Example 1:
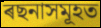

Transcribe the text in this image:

ৰছনাসমূহত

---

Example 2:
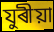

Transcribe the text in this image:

যুৰীয়া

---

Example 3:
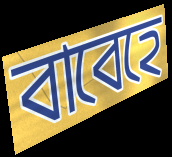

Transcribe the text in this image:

বাবেহে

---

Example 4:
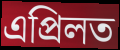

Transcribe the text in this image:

এপ্ৰিলত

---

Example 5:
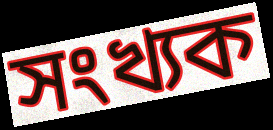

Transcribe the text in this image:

সংখ্যক